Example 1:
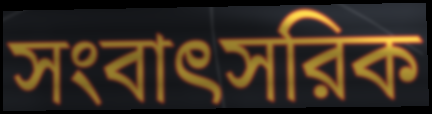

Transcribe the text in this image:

সংবাৎসরিক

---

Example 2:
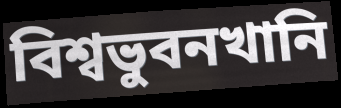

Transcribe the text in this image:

বিশ্বভুবনখানি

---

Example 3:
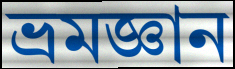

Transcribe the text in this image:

ভ্রমজ্ঞান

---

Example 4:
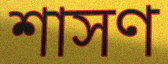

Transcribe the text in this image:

শাসণ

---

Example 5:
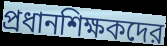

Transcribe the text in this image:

প্রধানশিক্ষকদের